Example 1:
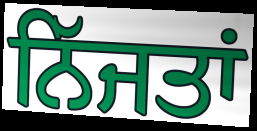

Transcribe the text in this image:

ਨਿੱਜਤਾਂ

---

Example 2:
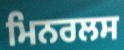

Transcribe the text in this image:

ਮਿਨਰਲਸ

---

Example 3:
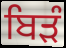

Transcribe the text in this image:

ਬਿੜੰ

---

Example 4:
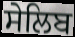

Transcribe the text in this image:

ਸੇਲਿਬ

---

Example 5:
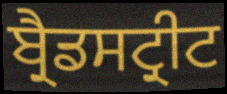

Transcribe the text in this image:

ਬ੍ਰੈਡਸਟ੍ਰੀਟ